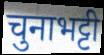
चुनाभट्टी